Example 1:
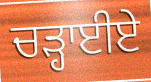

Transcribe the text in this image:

ਚੜ੍ਹਾਈਏ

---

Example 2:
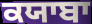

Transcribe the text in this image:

ਕਯਾਬਾ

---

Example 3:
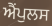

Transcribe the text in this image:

ਐਂਪੁਲਸ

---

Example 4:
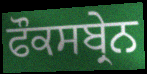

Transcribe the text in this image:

ਫੌਕਸਬ੍ਰੇਨ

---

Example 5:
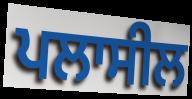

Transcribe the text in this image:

ਪਲਾਸੀਲ